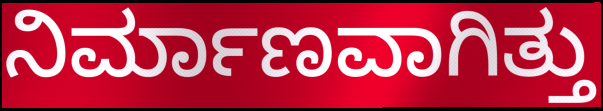
ನಿರ್ಮಾಣವಾಗಿತ್ತು